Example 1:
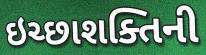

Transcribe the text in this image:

ઇચ્છાશક્તિની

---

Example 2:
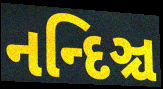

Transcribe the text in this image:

નન્દિઞ્ચ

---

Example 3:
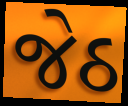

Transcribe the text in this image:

જેઠ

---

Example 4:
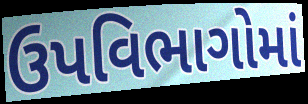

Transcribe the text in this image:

ઉપવિભાગોમાં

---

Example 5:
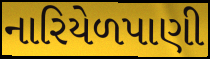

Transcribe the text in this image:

નારિયેળપાણી